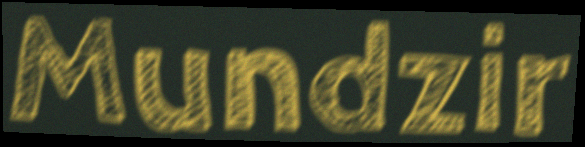
Mundzir